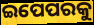
ଇପେପରକୁ